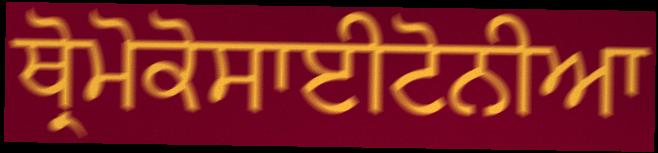
ਥ੍ਰੋਮੋਕੋਸਾਈਟੋਨੀਆ